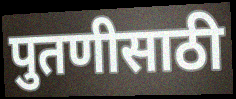
पुतणीसाठी